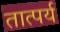
तात्पर्य